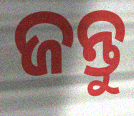
ଜନ୍ତୁ